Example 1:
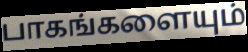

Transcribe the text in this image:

பாகங்களையும்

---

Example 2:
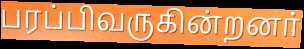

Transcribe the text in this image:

பரப்பிவருகின்றனர்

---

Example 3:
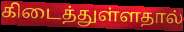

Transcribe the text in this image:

கிடைத்துள்ளதால்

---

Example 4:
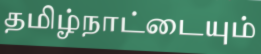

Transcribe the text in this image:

தமிழ்நாட்டையும்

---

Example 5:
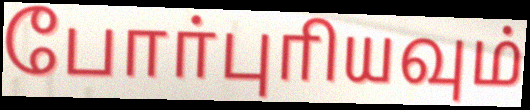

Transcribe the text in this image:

போர்புரியவும்